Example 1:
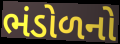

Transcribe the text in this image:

ભંડોળનો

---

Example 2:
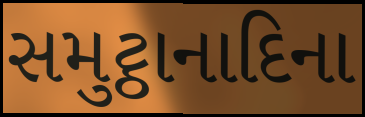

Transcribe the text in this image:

સમુટ્ઠાનાદિના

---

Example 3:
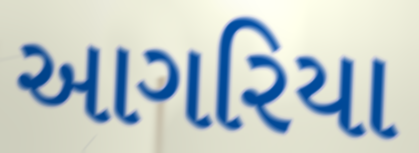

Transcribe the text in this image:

આગરિયા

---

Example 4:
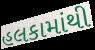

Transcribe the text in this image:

હલકામાંથી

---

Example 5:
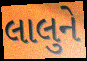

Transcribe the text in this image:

લાલુને